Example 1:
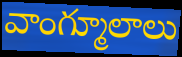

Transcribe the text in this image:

వాంగ్మూలాలు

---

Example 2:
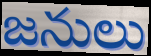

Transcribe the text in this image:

జనులు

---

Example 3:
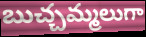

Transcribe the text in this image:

బుచ్చమ్మలుగా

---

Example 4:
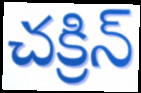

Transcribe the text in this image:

చక్రిన్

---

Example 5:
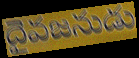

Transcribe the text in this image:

దైవజనుడు